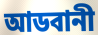
আডবানী